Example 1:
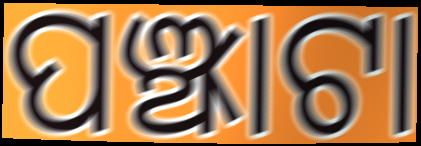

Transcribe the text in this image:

ପଞ୍ଝାଟା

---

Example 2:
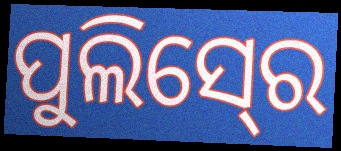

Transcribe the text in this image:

ପୁଲିସ୍‍ରେ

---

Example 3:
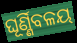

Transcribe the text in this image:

ଘୂର୍ଣ୍ଣିବଳୟ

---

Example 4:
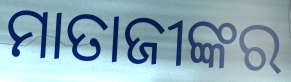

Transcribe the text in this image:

ମାତାଜୀଙ୍କର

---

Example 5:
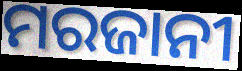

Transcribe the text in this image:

ମରଜାନୀ